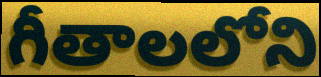
గీతాలలోని